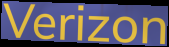
Verizon